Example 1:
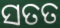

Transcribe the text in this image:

ସତତ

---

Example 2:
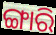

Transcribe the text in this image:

ଙ୍ଗାରି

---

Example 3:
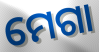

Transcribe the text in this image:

ମେଗା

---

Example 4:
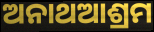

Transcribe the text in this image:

ଅନାଥଆଶ୍ରମ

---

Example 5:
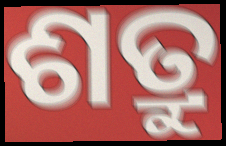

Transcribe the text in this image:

ଶତ୍ରୁ